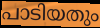
പാടിയതും